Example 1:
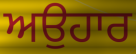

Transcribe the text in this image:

ਅਉਹਾਰ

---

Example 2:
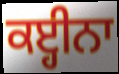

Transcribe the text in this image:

ਕੲ੍ਹੀਨਾ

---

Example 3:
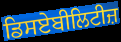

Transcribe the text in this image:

ਡਿਸਏਬੀਲਿਟੀਜ਼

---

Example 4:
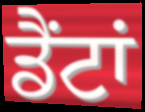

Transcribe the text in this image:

ਡੈਂਟਾਂ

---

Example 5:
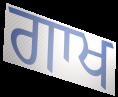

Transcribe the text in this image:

ਗਾਖ